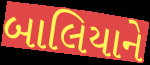
બાલિયાને